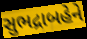
સુભદ્રાબહેને